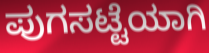
ಪುಗಸಟ್ಟೆಯಾಗಿ